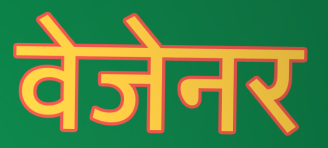
वेजेनर